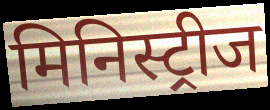
मिनिस्ट्रीज